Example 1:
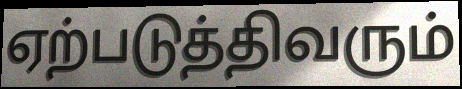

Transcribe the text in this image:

ஏற்படுத்திவரும்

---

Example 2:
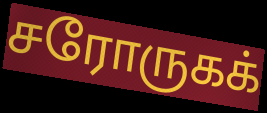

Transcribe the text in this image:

சரோருகக்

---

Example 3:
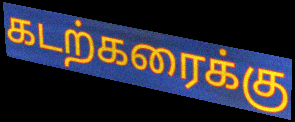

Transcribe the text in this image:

கடற்கரைக்கு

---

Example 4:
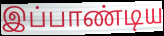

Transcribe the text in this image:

இப்பாண்டிய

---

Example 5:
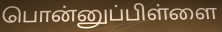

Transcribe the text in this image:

பொன்னுப்பிள்ளை